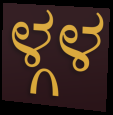
ಳ್ಗಳ